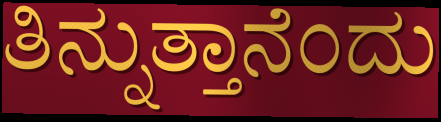
ತಿನ್ನುತ್ತಾನೆಂದು